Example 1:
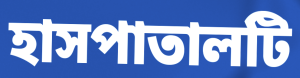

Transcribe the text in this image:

হাসপাতালটি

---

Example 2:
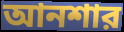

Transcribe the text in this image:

আনশার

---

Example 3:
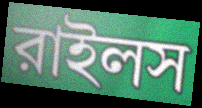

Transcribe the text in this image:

রাইলস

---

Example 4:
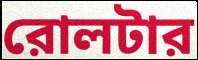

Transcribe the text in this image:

রোলটার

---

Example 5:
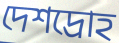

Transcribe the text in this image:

দেশদ্রোহ